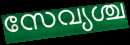
സേവ്യശ്ച